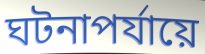
ঘটনাপর্যায়ে